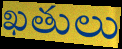
ఖతులు